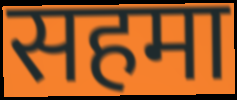
सहमा